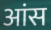
आंस